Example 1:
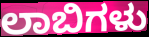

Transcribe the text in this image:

ಲಾಬಿಗಳು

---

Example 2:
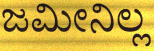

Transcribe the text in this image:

ಜಮೀನಿಲ್ಲ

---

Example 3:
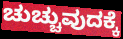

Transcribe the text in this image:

ಚುಚ್ಚುವುದಕ್ಕೆ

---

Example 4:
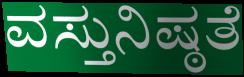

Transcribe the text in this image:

ವಸ್ತುನಿಷ್ಠತೆ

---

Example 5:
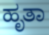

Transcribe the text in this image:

ಹೃತಾ